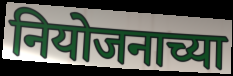
नियोजनाच्या